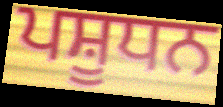
ਪਸ਼ੂਧਨ